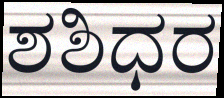
ಶಶಿಧರ